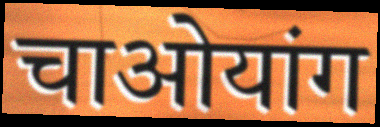
चाओयांग